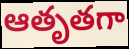
ఆతృతగా